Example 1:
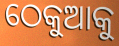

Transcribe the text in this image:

ଠେକୁଆକୁ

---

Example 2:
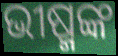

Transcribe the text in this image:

ଭୀଷ୍ମଙ୍କ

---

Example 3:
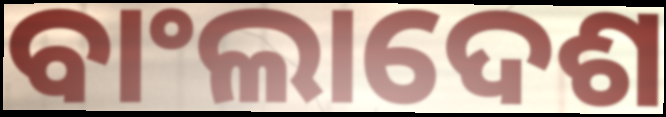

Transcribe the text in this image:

ବାଂଲାଦେଶ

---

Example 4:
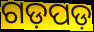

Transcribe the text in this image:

ଗଡ଼ପଡ଼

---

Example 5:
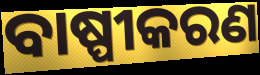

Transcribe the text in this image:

ବାଷ୍ପୀକରଣ